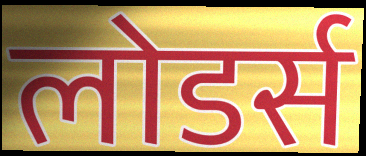
लोडर्स